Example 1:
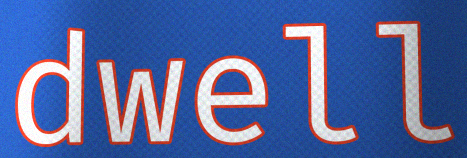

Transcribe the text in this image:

dwell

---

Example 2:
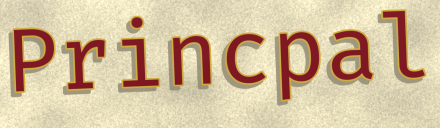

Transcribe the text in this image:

Princpal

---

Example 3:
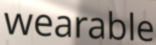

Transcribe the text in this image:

wearable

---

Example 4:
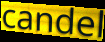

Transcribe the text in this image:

candel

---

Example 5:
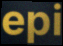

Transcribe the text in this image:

epi